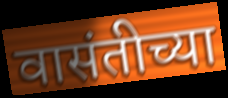
वासंतीच्या